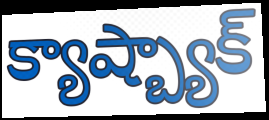
క్యాష్బ్యాక్